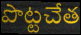
పొట్టచేత